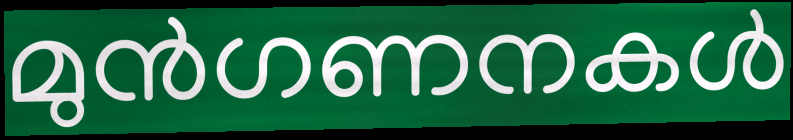
മുൻഗണനകൾ